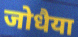
जोधैया